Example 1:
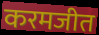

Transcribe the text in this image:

करमजीत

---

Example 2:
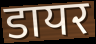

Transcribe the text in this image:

डायर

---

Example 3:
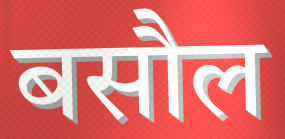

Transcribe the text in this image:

बसौल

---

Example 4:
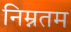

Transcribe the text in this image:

निम्नतम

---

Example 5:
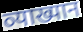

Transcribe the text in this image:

व्‍याख्‍यान